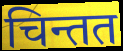
चिन्तत